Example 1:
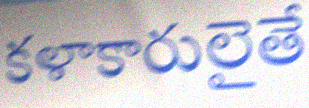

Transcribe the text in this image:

కళాకారులైతే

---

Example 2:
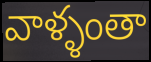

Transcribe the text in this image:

వాళ్ళంతా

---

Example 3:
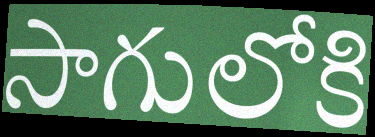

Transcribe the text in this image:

సాగులోకి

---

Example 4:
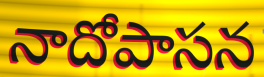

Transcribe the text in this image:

నాదోపాసన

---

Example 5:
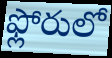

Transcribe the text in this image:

ఫ్లోరులో